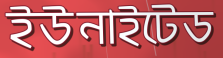
ইউনাইটেড